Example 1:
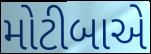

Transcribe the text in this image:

મોટીબાએ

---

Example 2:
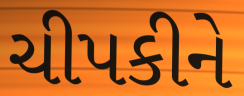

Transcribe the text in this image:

ચીપકીને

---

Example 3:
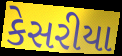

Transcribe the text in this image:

કેસરીયા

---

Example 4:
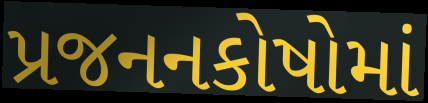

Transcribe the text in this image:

પ્રજનનકોષોમાં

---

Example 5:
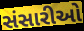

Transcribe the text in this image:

સંસારીઓ